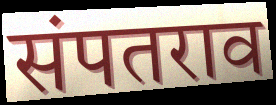
संपतराव